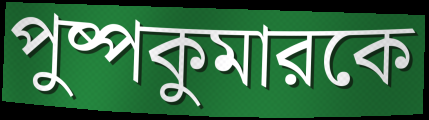
পুষ্পকুমারকে